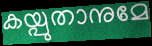
കയ്പുതാനുമേ